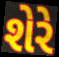
શેરે